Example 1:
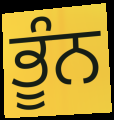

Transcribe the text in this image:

ਭੂੰਨ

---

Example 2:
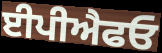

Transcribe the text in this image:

ਈਪੀਐਫਓ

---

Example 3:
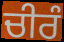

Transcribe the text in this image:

ਚੀਰੰ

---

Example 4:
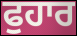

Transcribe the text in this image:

ਫੁਹਾਰ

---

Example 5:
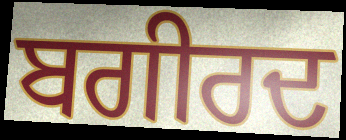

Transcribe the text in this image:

ਬਗੀਰਦ